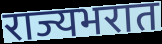
राज्यभरात